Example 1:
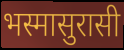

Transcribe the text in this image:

भस्मासुरासी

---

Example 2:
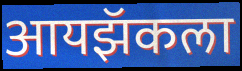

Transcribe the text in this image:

आयझॅकला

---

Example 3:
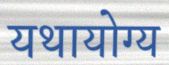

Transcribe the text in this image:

यथायोग्य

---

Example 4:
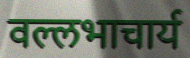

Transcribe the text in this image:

वल्लभाचार्य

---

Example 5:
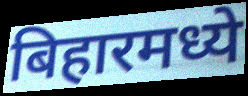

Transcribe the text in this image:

बिहारमध्ये